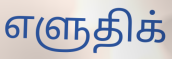
எளுதிக்